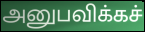
அனுபவிக்கச்